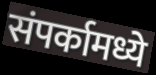
संपर्कामध्ये